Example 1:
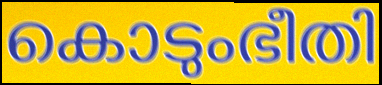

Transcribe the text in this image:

കൊടുംഭീതി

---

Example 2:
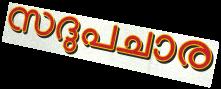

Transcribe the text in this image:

സദുപചാര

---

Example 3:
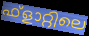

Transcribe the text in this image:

ഫ്ളാറ്റിലെ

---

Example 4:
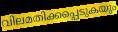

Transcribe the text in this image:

വിലമതിക്കപ്പെടുകയും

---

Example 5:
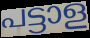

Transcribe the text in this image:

പട്ടാള